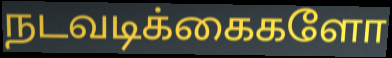
நடவடிக்கைகளோ